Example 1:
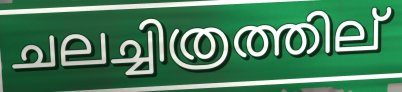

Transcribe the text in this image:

ചലച്ചിത്രത്തില്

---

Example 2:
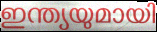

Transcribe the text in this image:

ഇന്ത്യയുമായി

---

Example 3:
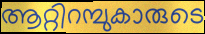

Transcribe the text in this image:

ആറ്റിറമ്പുകാരുടെ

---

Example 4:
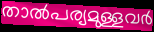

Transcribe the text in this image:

താൽപര്യമുള്ളവർ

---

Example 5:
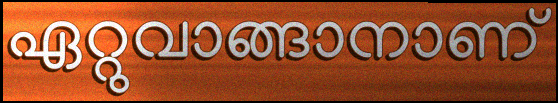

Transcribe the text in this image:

ഏറ്റുവാങ്ങാനാണ്